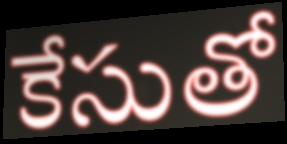
కేసుతో